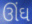
ઊંઘ